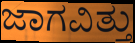
ಜಾಗವಿತ್ತು